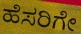
ಹೆಸರಿಗೇ